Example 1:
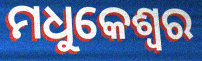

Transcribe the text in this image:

ମଧୁକେଶ୍ୱର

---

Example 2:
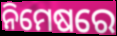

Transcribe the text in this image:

ନିମେଷରେ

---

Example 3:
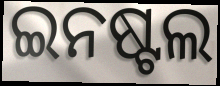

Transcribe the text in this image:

ଇନଷ୍ଟଲ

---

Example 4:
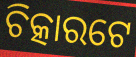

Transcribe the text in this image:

ଚିତ୍କାରଟେ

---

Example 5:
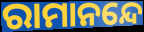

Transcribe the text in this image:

ରାମାନନ୍ଦେ